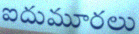
ఐదుమూరలు